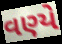
વણ્યે